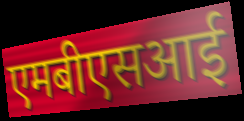
एमबीएसआई